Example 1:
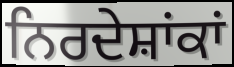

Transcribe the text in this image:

ਨਿਰਦੇਸ਼ਾਂਕਾਂ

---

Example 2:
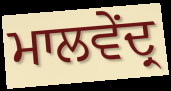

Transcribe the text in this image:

ਮਾਲਵੇਂਦ੍ਰ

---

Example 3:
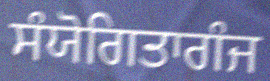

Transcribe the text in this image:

ਸੰਯੋਗਿਤਾਗੰਜ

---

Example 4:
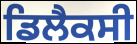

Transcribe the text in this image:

ਡਿਲੈਕਸੀ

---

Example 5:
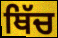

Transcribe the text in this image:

ਥਿੱਚ